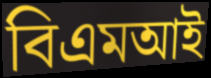
বিএমআই